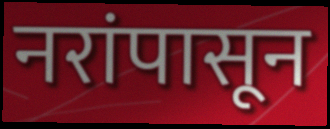
नरांपासून